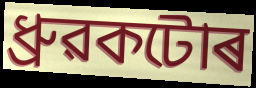
ধ্ৰুৱকটোৰ